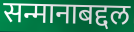
सन्मानाबद्दल